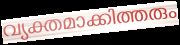
വ്യക്തമാക്കിത്തരും